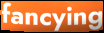
fancying